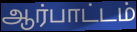
ஆர்பாட்டம்